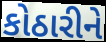
કોઠારીને